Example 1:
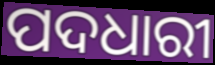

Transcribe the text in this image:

ପଦଧାରୀ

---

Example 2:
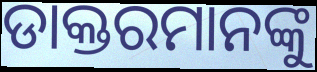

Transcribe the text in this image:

ଡାକ୍ତରମାନଙ୍କୁ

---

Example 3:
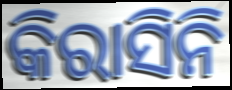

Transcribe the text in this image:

କିରାସିନି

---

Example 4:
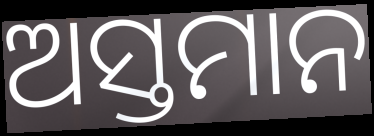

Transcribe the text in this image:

ଅସ୍ତମାନ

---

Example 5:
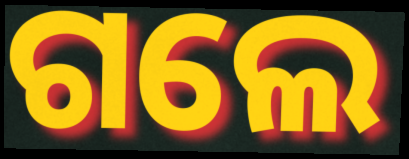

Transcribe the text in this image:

ଗଲେ